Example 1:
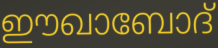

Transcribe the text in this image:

ഈഖാബോദ്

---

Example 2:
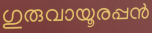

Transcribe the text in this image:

ഗുരുവായൂരപ്പൻ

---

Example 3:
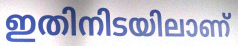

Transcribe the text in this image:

ഇതിനിടയിലാണ്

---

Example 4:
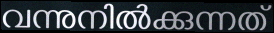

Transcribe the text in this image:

വന്നുനിൽക്കുന്നത്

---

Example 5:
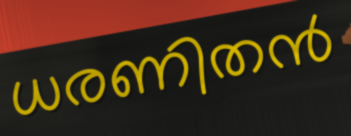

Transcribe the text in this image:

ധരണിതൻ